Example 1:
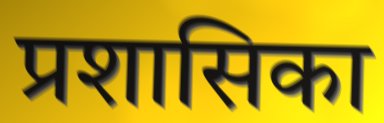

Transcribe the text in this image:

प्रशासिका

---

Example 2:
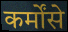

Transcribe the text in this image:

कर्मोंसे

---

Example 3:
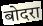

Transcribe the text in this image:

बोदरा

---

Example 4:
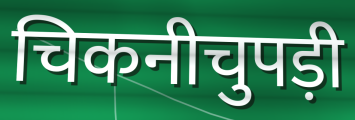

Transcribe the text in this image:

चिकनीचुपड़ी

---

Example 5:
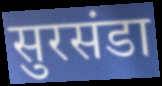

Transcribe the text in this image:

सुरसंडा